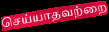
செய்யாதவற்றை